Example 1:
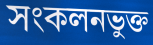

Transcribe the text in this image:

সংকলনভুক্ত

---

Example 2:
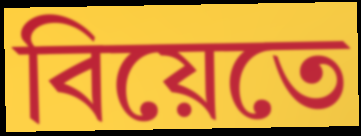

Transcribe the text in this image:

বিয়েতে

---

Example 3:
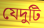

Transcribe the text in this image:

যেদুটি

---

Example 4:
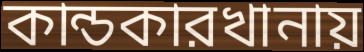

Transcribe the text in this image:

কান্ডকারখানায়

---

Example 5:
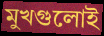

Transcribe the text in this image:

মুখগুলোই